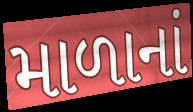
માળાનાં